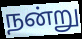
நன்று